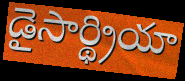
డైసార్థ్రియా